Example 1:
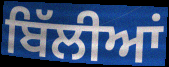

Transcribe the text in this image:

ਬਿੱਲੀਆਂ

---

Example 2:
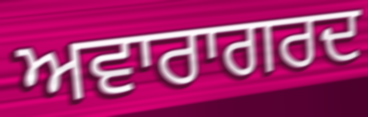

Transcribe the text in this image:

ਅਵਾਰਾਗਰਦ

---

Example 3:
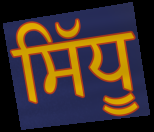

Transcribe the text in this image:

ਸਿੱਧੂ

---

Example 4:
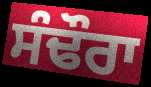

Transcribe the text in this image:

ਸੰਢੌਰਾ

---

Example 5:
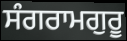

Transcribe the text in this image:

ਸੰਗਰਾਮਗੁਰੂ